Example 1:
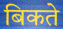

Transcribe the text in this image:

बिकते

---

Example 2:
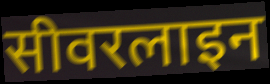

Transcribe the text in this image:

सीवरलाइन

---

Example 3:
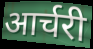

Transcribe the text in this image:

आर्चरी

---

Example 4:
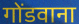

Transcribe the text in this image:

गोंडवाना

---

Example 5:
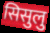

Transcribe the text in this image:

सिसुलु